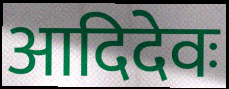
आदिदेवः